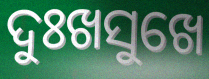
ଦୁଃଖସୁଖେ